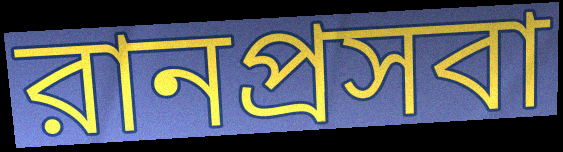
রানপ্রসবা